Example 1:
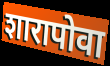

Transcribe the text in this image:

शारापोवा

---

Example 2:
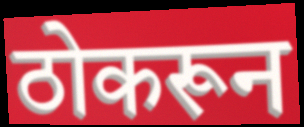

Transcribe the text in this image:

ठोकरून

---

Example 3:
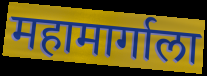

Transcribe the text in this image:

महामार्गाला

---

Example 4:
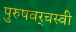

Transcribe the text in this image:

पुरुषवर्चस्वी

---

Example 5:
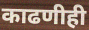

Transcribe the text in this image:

काढणीही